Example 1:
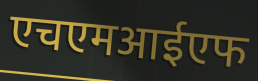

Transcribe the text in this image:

एचएमआईएफ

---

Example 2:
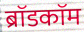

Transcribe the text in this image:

ब्रॉडकॉम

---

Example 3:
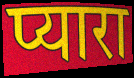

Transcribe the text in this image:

प्‍यारा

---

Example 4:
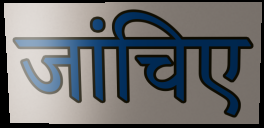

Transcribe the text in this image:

जांचिए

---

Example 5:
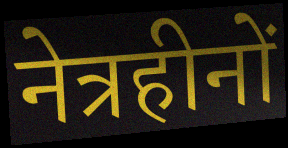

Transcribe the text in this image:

नेत्रहीनों